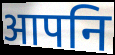
आपनि